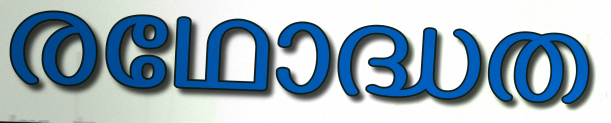
രഥോദ്ധത